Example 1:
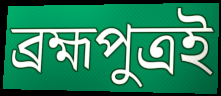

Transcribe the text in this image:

ব্রহ্মপুত্রই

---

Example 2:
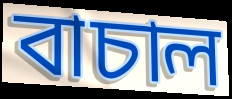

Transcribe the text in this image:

বাচাল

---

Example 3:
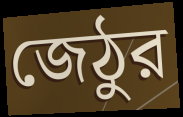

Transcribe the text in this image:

জেঠুর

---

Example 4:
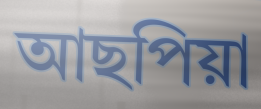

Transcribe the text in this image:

আছপিয়া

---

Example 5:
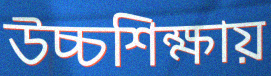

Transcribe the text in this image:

উচ্চশিক্ষায়